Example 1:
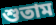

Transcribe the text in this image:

শুতাম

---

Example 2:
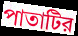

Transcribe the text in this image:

পাতাটির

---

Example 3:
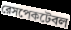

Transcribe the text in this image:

রেসপেকটেবল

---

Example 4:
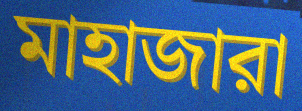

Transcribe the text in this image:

মাহাজারা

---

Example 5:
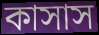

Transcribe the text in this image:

কাসাস